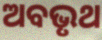
ଅବଭୃଥ